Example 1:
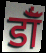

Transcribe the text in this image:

डॉँ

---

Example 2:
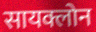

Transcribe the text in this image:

सायक्लोन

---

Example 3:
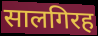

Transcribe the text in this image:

सालगिरह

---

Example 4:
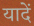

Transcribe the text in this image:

यादें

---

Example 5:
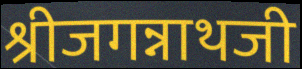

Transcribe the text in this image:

श्रीजगन्नाथजी